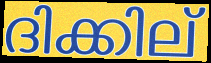
ദിക്കില്